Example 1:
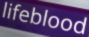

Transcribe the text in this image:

lifeblood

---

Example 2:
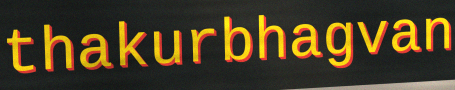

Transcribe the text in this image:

thakurbhagvan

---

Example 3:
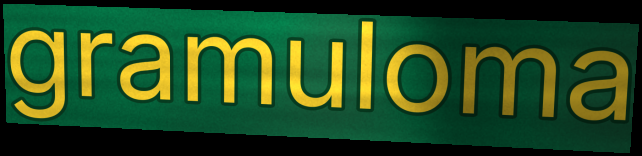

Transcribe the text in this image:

gramuloma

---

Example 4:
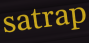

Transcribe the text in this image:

satrap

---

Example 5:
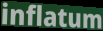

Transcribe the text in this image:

inflatum